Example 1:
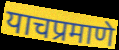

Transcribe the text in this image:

याचप्रमाणे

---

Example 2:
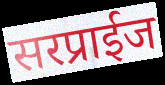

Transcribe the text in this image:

सरप्राईज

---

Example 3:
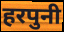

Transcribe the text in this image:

हरपुनी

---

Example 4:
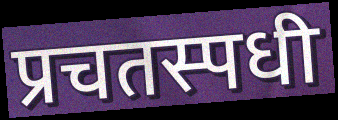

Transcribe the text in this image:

प्रचतस्पधी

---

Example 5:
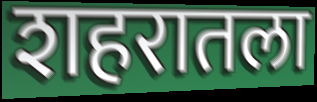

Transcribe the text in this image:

शहरातला